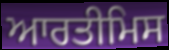
ਆਰਤੀਮਿਸ